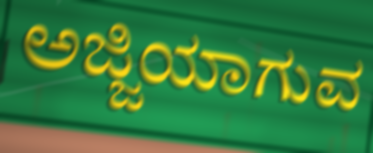
ಅಜ್ಜಿಯಾಗುವ